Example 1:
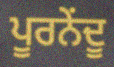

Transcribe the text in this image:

ਪੂਰਨੇਂਦੂ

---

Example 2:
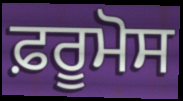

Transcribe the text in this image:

ਫ਼ਰੂਮੋਸ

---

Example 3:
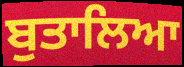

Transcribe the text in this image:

ਬੁਤਾਲਿਆ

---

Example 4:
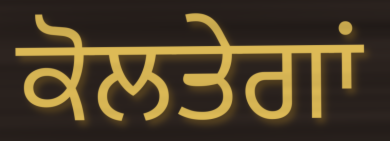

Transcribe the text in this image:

ਕੋਲਤੇਗਾਂ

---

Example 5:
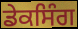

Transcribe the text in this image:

ਡੇਕਸਿੰਗ